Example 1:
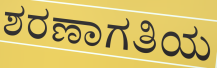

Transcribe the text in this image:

ಶರಣಾಗತಿಯ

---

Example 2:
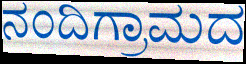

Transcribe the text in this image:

ನಂದಿಗ್ರಾಮದ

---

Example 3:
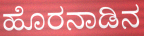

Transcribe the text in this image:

ಹೊರನಾಡಿನ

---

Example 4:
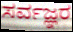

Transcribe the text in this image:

ಸರ್ವಜ್ಞರ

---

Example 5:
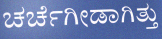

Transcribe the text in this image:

ಚರ್ಚೆಗೀಡಾಗಿತ್ತು